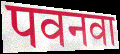
पवनवा